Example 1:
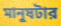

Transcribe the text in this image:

মানুষটার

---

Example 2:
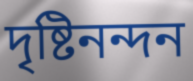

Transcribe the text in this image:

দৃষ্টিনন্দন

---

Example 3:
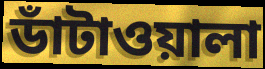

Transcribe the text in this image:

ডাঁটাওয়ালা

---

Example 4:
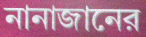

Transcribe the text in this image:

নানাজানের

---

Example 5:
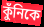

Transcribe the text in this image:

কুঁনিকে